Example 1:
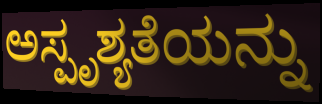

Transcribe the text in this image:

ಅಸ್ಪೃಶ್ಯತೆಯನ್ನು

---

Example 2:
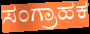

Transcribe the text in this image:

ಸಂಗ್ರಾಹಕ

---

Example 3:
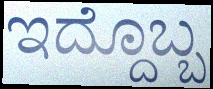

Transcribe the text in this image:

ಇದ್ದೊಬ್ಬ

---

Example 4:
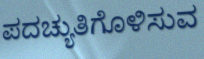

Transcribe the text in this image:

ಪದಚ್ಯುತಿಗೊಳಿಸುವ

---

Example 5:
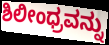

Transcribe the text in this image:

ಶಿಲೀಂಧ್ರವನ್ನು